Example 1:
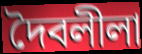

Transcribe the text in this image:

দৈবলীলা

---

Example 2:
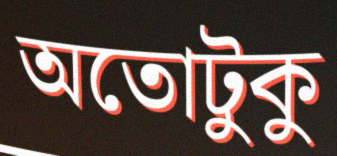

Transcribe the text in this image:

অতোটুকু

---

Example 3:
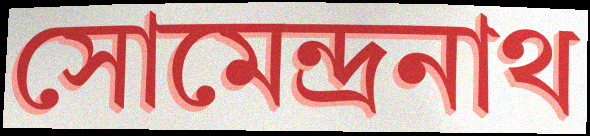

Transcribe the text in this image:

সোমেন্দ্রনাথ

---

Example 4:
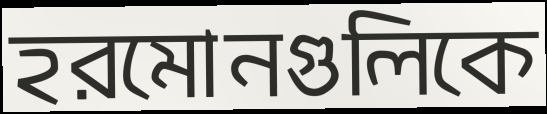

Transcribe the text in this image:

হরমোনগুলিকে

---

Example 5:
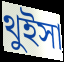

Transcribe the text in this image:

থুইসা